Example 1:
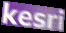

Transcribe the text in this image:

kesri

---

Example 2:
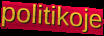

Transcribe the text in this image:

politikoje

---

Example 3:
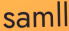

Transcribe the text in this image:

samll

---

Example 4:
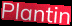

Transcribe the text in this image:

Plantin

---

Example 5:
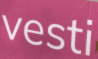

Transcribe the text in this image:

vesti